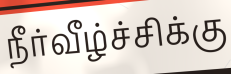
நீர்வீழ்ச்சிக்கு